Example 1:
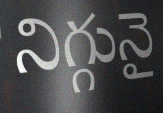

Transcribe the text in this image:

నిగ్గునై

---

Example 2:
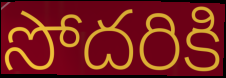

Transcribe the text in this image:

సోదరికి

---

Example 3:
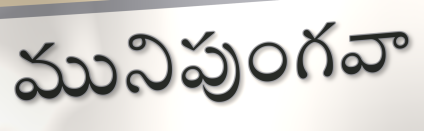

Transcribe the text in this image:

మునిపుంగవా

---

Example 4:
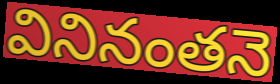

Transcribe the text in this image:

వినినంతనె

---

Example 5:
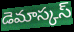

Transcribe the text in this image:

డెమాస్కస్